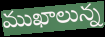
ముఖాలున్న